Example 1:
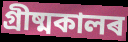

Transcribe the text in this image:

গ্ৰীষ্মকালৰ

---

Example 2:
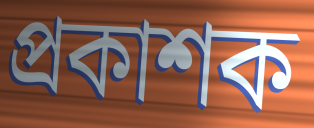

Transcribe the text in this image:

প্ৰকাশক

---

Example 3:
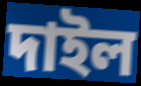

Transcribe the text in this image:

দাইল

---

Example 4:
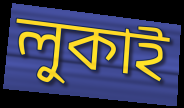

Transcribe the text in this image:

লুকাই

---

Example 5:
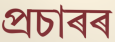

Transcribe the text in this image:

প্ৰচাৰৰ